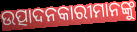
ଉତ୍ପାଦନକାରୀମାନଙ୍କୁ